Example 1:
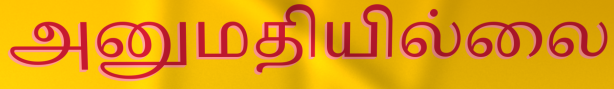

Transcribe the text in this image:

அனுமதியில்லை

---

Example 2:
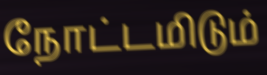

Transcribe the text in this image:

நோட்டமிடும்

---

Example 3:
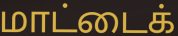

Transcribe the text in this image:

மாட்டைக்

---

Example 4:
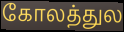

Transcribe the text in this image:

கோலத்துல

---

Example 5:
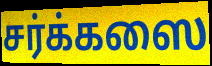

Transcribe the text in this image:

சர்க்கஸை